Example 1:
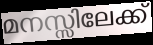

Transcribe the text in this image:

മനസ്സിലേക്ക്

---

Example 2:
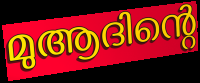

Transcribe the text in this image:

മുആദിന്റെ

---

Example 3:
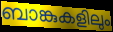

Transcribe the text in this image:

ബാങ്കുകളിലും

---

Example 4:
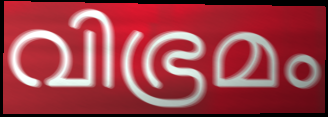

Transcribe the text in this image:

വിഭ്രമം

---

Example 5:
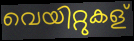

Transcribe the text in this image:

വെയിറ്റുകള്